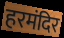
हरमंदिर